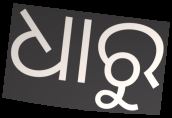
ଧାରୁ